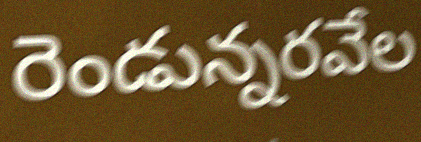
రెండున్నరవేల